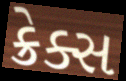
ક્રેક્સ